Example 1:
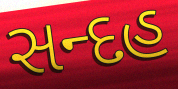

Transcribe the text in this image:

સન્દહ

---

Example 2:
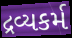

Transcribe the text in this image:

દ્રવ્યકર્મ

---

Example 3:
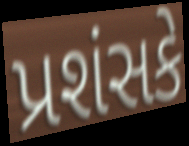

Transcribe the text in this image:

પ્રશંસકે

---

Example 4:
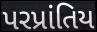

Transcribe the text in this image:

પરપ્રાંતિય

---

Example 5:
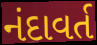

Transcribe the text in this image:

નંદાવર્ત